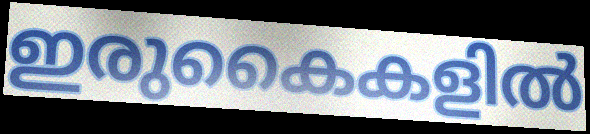
ഇരുകൈകളിൽ